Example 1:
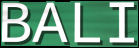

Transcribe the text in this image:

BALI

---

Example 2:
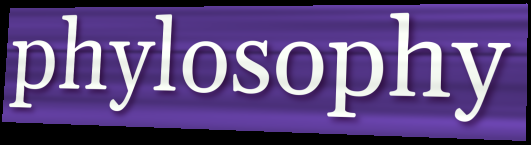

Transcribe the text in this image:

phylosophy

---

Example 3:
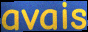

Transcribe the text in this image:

avais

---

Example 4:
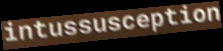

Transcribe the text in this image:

intussusception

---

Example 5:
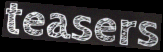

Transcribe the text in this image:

teasers